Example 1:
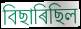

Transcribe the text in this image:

বিছাৰিছিল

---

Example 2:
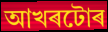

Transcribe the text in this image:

আখৰটোৰ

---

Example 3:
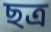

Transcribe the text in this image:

ছত্ৰ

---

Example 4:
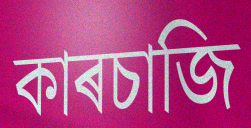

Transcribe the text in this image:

কাৰচাজি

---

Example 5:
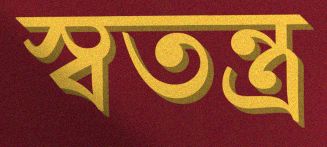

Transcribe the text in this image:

স্ৱতন্ত্ৰ